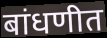
बांधणीत